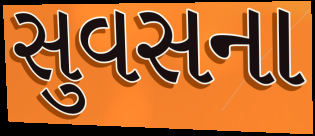
સુવસના